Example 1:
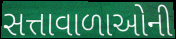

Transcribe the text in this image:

સત્તાવાળાઓની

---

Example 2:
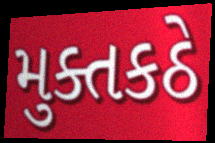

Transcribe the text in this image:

મુક્તકઠે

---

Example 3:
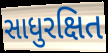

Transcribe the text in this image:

સાધુરક્ષિત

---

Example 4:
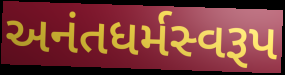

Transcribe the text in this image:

અનંતધર્મસ્વરૂપ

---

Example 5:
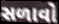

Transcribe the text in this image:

સળાવો